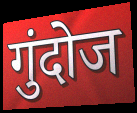
गुंदोज